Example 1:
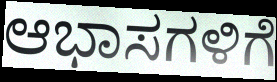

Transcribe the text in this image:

ಆಭಾಸಗಳಿಗೆ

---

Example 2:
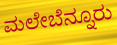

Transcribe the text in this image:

ಮಲೇಬೆನ್ನೂರು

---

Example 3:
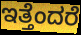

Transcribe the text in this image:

ಇತ್ತೆಂದರೆ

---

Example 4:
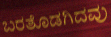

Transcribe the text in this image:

ಬರತೊಡಗಿದವು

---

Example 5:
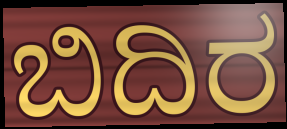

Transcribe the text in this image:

ಬಿದಿರ